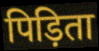
पिड़िता